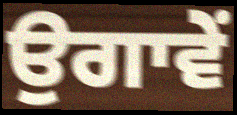
ਉਗਾਵੇਂ